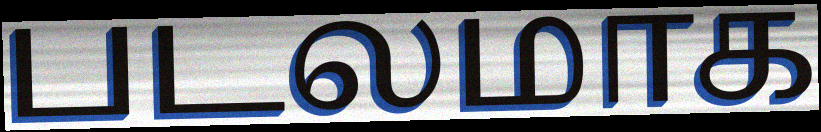
படலமாக